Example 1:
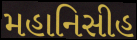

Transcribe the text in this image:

મહાનિસીહ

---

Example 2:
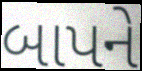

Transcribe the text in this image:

બાપને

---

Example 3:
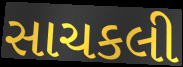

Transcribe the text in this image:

સાચકલી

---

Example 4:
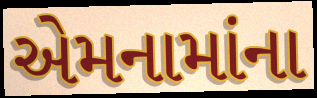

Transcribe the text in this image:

એમનામાંના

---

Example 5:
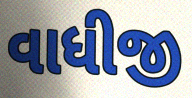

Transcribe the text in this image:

વાધીજી